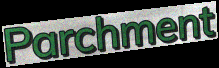
Parchment